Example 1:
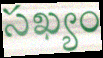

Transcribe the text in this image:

సఖ్యం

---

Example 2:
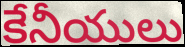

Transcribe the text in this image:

కేనీయులు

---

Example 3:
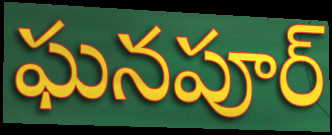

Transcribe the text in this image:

ఘనపూర్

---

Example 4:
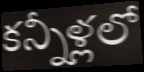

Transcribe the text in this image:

కన్నీళ్లలో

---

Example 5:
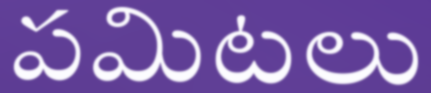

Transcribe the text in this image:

పమిటలు